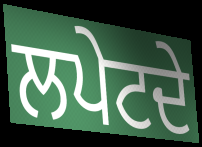
ਲਪੇਟਦੇ